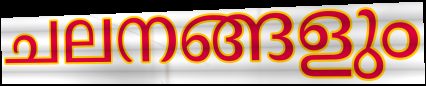
ചലനങ്ങളും